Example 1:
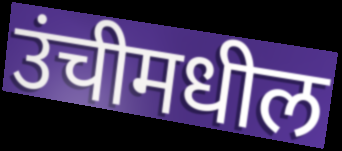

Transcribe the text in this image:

उंचीमधील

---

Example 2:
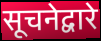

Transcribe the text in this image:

सूचनेद्वारे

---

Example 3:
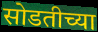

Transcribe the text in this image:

सोडतीच्या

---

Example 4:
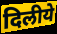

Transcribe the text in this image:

दिलीये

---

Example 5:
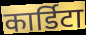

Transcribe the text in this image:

कार्डिटा